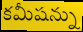
కమీషన్ను